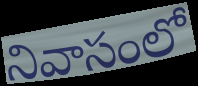
నివాసంలో